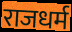
राजधर्म